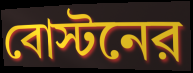
বোস্টনের